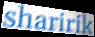
sharirik